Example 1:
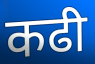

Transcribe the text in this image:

कढी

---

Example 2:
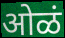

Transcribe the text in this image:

ओळं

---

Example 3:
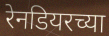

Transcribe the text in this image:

रेनडियरच्या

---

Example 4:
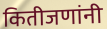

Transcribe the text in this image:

कितीजणांनी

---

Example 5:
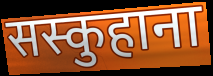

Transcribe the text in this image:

सस्कुहाना